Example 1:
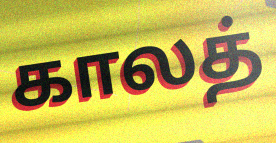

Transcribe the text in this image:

காலத்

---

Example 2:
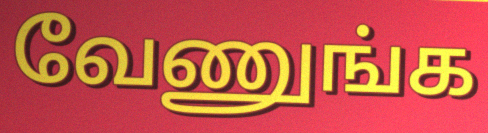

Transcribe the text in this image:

வேணுங்க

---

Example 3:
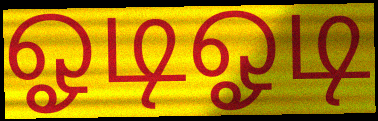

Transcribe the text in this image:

ஓடிஓடி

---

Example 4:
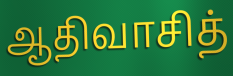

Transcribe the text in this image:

ஆதிவாசித்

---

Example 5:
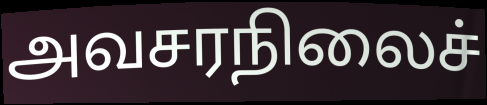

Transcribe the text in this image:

அவசரநிலைச்